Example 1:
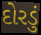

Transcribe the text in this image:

દોરડું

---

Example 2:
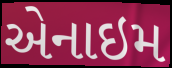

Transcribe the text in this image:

એનાઇમ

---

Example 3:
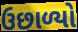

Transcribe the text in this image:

ઉછાળ્યો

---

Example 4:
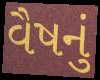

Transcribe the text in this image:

વૈષનું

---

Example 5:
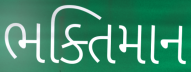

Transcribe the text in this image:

ભક્તિમાન